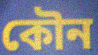
কৌন